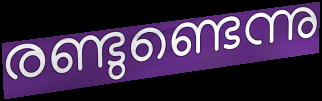
രണ്ടുണ്ടെന്നു